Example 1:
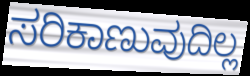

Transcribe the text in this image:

ಸರಿಕಾಣುವುದಿಲ್ಲ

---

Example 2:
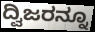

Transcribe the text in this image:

ದ್ವಿಜರನ್ನೂ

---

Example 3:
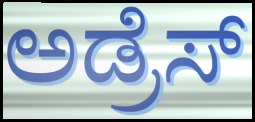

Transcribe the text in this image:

ಅಡ್ರೆಸ್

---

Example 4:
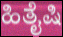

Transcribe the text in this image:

ಹಿತೈಷಿ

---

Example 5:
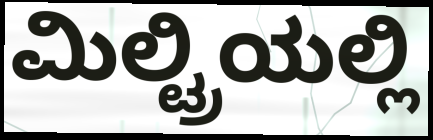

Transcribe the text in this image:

ಮಿಲ್ಟ್ರಿಯಲ್ಲಿ